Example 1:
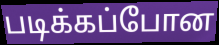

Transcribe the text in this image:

படிக்கப்போன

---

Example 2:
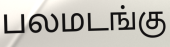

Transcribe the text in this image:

பலமடங்கு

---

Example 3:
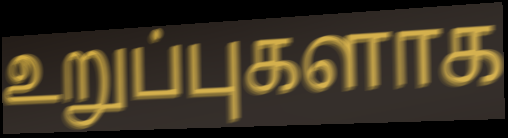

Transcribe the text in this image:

உறுப்புகளாக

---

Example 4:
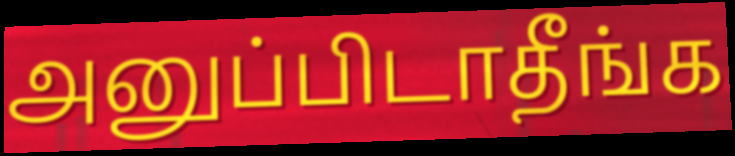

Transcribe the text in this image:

அனுப்பிடாதீங்க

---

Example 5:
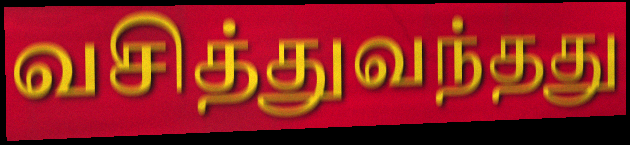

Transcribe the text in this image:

வசித்துவந்தது